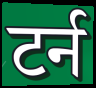
टर्न